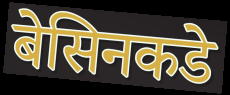
बेसिनकडे